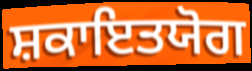
ਸ਼ਕਾਇਤਯੋਗ